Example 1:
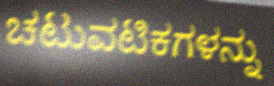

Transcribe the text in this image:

ಚಟುವಟಿಕಗಳನ್ನು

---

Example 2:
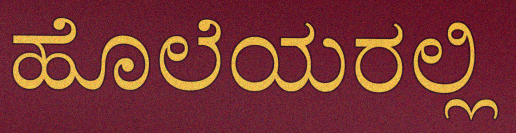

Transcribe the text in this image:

ಹೊಲೆಯರಲ್ಲಿ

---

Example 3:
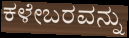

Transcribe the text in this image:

ಕಳೇಬರವನ್ನು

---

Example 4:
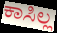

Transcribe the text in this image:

ಕಾಸಿಲ್ಲ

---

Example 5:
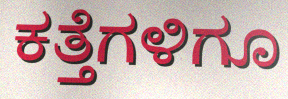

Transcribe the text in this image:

ಕತ್ತೆಗಳಿಗೂ